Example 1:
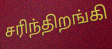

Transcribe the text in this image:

சரிந்திறங்கி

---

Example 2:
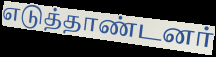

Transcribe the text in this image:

எடுத்தாண்டனர்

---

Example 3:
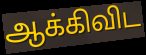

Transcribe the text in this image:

ஆக்கிவிட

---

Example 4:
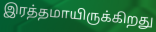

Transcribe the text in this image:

இரத்தமாயிருக்கிறது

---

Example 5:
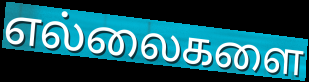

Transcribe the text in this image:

எல்லைகளை